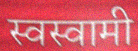
स्वस्वामी